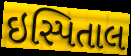
ઇસ્પિતાલ